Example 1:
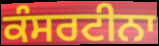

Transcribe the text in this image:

ਕੰਸਰਟੀਨਾ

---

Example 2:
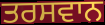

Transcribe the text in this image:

ਤਰਸਵਾਨ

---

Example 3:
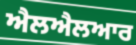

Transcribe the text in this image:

ਐਲਐਲਆਰ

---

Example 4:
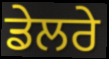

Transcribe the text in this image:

ਡੇਲਰੇ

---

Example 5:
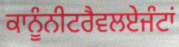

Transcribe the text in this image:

ਕਾਨੂੰਨੀਟਰੈਵਲਏਜੰਟਾਂ